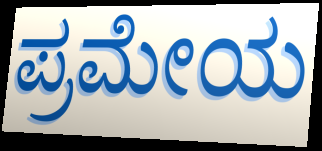
ಪ್ರಮೇಯ